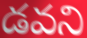
డవని